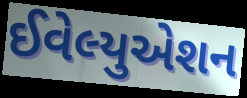
ઈવેલ્યુએશન